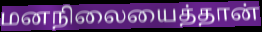
மனநிலையைத்தான்